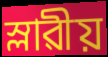
স্লাৱীয়